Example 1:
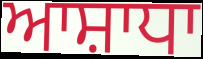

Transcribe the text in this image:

ਆਸ਼ਾਧਾ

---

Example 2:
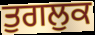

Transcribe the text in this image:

ਤੁਗਲੁਕ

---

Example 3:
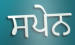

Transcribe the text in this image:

ਸਪੇਨ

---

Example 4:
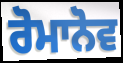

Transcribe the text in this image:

ਰੋਮਾਨੋਵ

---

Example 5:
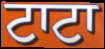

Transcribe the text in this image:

ਟਾਟਾ